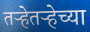
तर्‍हेतर्‍हेच्या